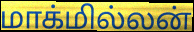
மாக்மில்லன்